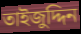
তাইজুদ্দিন